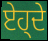
ਏਹ੍ਦੇ